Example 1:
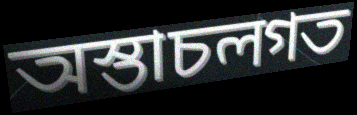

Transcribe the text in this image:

অস্তাচলগত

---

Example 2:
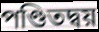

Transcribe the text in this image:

পণ্ডিতদ্বয়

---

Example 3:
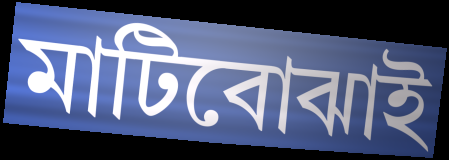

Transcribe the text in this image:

মাটিবোঝাই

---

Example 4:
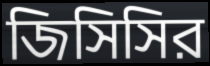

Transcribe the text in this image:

জিসিসির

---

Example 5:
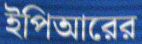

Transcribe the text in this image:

ইপিআরের